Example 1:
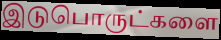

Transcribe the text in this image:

இடுபொருட்களை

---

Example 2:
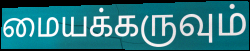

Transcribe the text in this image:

மையக்கருவும்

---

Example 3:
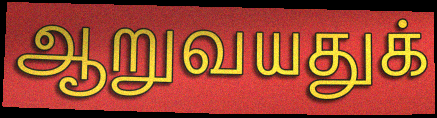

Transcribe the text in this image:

ஆறுவயதுக்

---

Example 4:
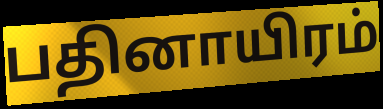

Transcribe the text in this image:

பதினாயிரம்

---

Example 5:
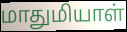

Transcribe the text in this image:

மாதுமியாள்